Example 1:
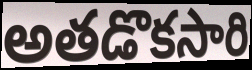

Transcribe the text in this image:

అతడొకసారి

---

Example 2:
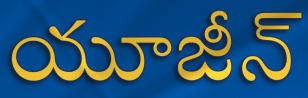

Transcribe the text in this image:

యూజీన్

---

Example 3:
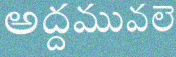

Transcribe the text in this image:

అద్దమువలె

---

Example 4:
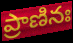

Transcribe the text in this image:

ప్రాణినః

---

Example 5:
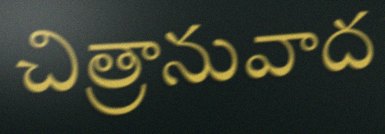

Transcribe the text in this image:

చిత్రానువాద